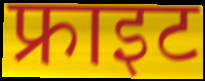
फ्राइट